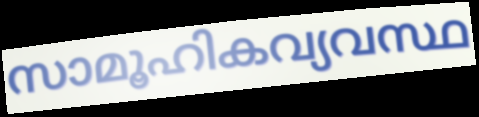
സാമൂഹികവ്യവസ്ഥ